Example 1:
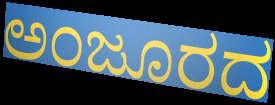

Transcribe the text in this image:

ಅಂಜೂರದ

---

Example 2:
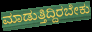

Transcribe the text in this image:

ಮಾಡುತ್ತಿದ್ದಿರಬೇಕು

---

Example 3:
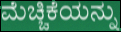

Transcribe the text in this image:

ಮೆಚ್ಚಿಕೆಯನ್ನು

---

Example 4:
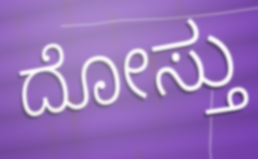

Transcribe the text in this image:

ದೋಸ್ತು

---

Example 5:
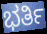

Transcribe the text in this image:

ಭರ್ತಿ